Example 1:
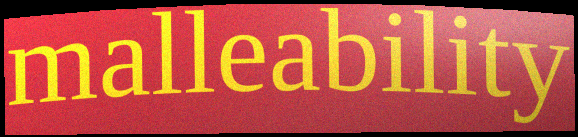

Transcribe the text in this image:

malleability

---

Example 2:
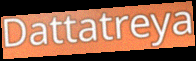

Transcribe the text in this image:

Dattatreya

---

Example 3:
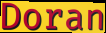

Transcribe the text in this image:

Doran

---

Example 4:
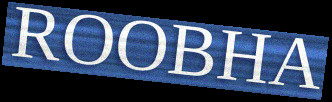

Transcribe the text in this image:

ROOBHA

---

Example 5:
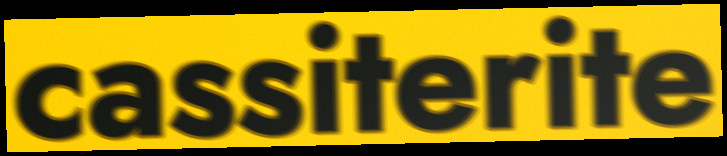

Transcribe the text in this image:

cassiterite